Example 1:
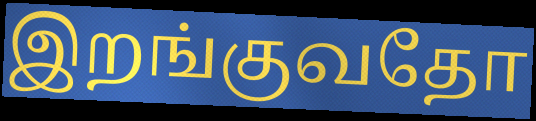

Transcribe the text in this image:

இறங்குவதோ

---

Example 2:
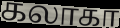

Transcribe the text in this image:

கலாகா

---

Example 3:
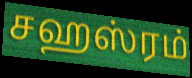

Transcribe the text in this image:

சஹஸ்ரம்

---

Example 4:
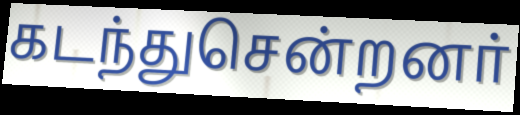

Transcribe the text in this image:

கடந்துசென்றனர்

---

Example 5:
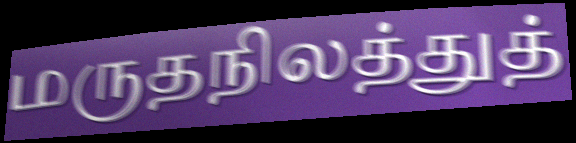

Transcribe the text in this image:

மருதநிலத்துத்